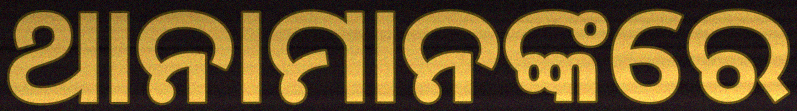
ଥାନାମାନଙ୍କରେ